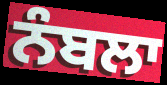
ਨੰਬਲਾ